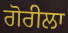
ਗੋਰੀਲਾ